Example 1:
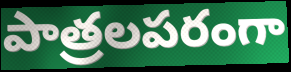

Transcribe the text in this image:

పాత్రలపరంగా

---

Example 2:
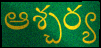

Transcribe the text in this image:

ఆశ్చర్య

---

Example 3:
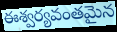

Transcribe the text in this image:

ఈశ్వర్యవంతమైన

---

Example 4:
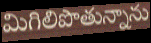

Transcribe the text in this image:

మిగిలిపొతున్నాను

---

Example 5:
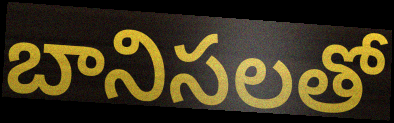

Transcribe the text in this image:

బానిసలతో